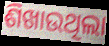
ଶିଖାଉଥିଲା